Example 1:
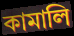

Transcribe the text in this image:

কামালি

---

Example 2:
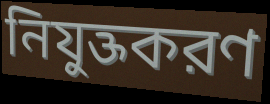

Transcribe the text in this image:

নিযুক্তকরণ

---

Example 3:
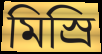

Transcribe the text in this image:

মিস্রি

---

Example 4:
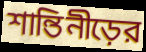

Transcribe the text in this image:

শান্তিনীড়ের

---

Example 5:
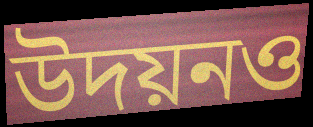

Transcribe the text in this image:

উদয়নও